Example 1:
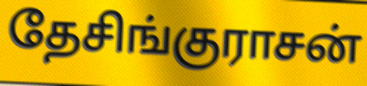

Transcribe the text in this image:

தேசிங்குராசன்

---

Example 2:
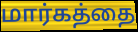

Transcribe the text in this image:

மார்கத்தை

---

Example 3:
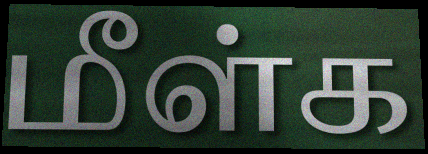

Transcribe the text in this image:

மீள்க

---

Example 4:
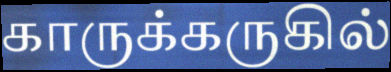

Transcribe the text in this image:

காருக்கருகில்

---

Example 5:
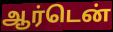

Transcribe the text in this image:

ஆர்டென்